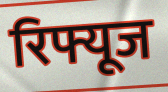
रिफ्यूज